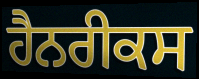
ਹੈਨਰੀਕਸ